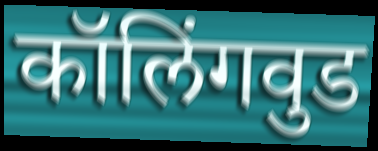
कॉलिंगवुड